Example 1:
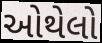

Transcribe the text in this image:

ઓથેલો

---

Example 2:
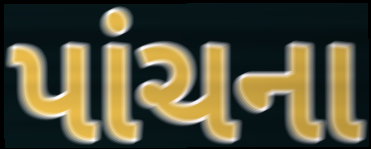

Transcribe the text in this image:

પાંચના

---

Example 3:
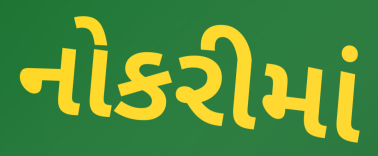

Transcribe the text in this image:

નોકરીમાં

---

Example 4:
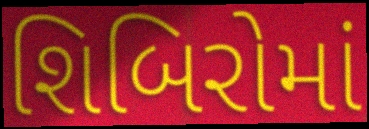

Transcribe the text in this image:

શિબિરોમાં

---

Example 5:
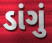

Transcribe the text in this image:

ડાંગું